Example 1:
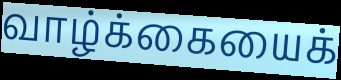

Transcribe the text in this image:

வாழ்க்கையைக்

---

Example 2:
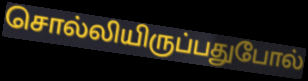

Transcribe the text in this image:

சொல்லியிருப்பதுபோல்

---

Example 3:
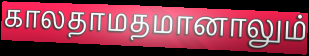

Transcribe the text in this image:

காலதாமதமானாலும்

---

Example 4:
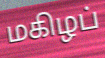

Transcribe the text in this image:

மகிழப்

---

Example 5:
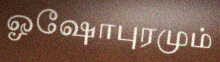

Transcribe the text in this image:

ஓஷோபுரமும்